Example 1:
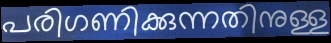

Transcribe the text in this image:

പരിഗണിക്കുന്നതിനുള്ള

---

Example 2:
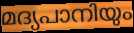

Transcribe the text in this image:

മദ്യപാനിയും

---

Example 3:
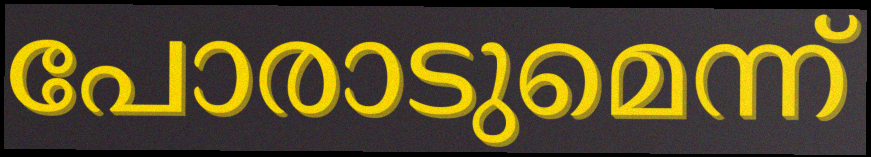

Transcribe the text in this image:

പോരാടുമെന്ന്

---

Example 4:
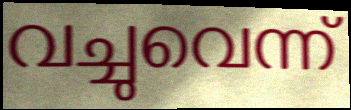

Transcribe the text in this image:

വച്ചുവെന്ന്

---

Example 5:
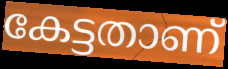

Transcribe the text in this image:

കേട്ടതാണ്